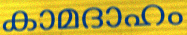
കാമദാഹം